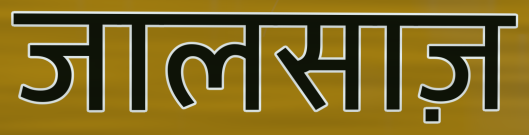
जालसाज़